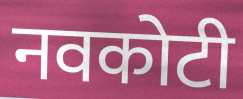
नवकोटी